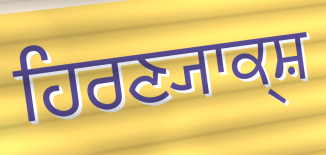
ਹਿਰਣ੍ਯਾਕ੍ਸ਼